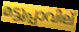
മട്ടുപ്പാവില്